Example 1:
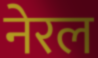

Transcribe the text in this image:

नेरल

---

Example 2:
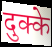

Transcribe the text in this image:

दुक्के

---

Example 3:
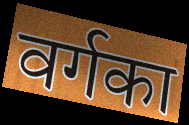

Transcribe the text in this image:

वर्गका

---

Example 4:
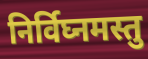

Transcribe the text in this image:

निर्विघ्नमस्तु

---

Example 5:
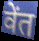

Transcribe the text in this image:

वेंत